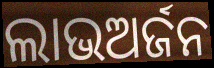
ଲାଭଅର୍ଜନ